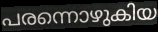
പരന്നൊഴുകിയ